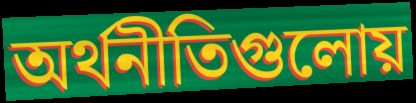
অর্থনীতিগুলোয়